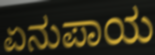
ಏನುಪಾಯ